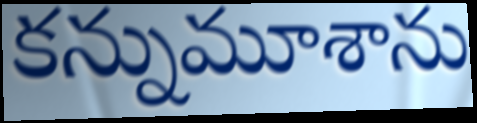
కన్నుమూశాను